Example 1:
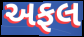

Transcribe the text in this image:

અફલ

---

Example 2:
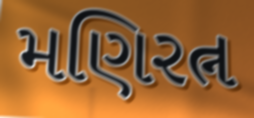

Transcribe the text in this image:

મણિરત્ન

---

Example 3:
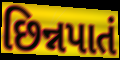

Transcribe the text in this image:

છિન્નપાતં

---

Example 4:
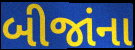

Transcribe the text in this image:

બીજાંના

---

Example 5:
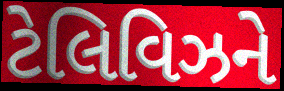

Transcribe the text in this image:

ટેલિવિઝને